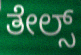
ತೇಲ್ಸ್